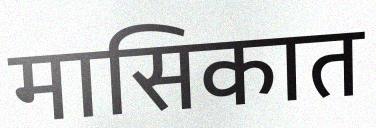
मासिकात